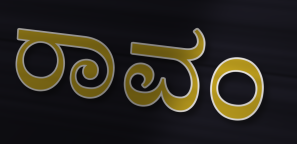
ರಾವಂ